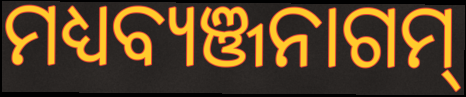
ମଧ୍ୟବ୍ୟଞ୍ଜନାଗମ୍